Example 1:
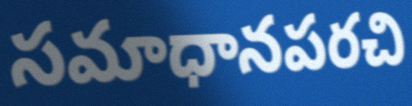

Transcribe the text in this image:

సమాధానపరచి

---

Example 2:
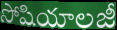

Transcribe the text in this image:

సోషియాలజీ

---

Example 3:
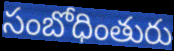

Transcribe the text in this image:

సంబోధింతురు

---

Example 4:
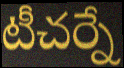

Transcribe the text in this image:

టీచర్నే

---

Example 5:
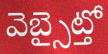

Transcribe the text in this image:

వెబ్సైట్తో